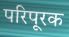
परिपूरक